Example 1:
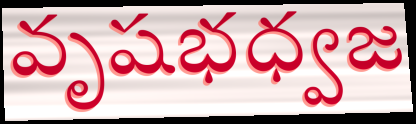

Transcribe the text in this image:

వృషభధ్వజ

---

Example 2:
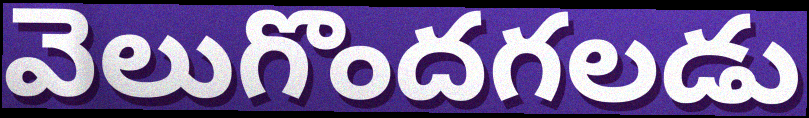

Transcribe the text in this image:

వెలుగొందగలడు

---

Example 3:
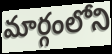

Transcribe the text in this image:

మార్గంలోని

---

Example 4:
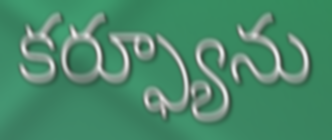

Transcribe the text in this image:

కర్ఫ్యూను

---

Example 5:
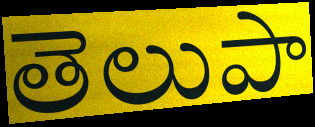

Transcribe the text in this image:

తెలుపా